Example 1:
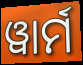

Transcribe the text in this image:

ୱାର୍ମ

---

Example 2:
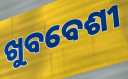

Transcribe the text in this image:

ଖୁବବେଶୀ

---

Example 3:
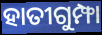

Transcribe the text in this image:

ହାତୀଗୁମ୍ଫା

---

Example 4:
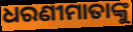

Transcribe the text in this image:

ଧରଣୀମାତାଙ୍କୁ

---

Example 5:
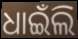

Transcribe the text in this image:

ଧାଇଁଲି